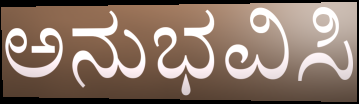
ಅನುಭವಿಸಿ